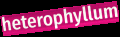
heterophyllum